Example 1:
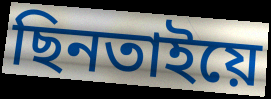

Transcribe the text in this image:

ছিনতাইয়ে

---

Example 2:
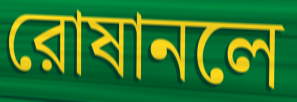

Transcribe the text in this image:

রোষানলে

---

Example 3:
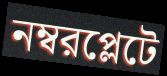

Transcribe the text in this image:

নম্বরপ্লেটে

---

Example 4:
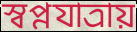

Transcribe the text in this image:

স্বপ্নযাত্রায়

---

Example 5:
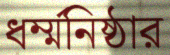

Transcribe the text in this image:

ধর্ম্মনিষ্ঠার